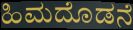
ಹಿಮದೊಡನೆ